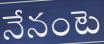
నేనంటె